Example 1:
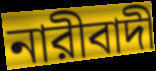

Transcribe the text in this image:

নারীবাদী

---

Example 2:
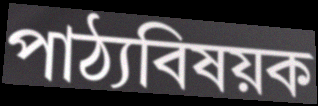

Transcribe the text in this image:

পাঠ্যবিষয়ক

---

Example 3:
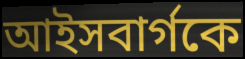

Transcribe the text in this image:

আইসবার্গকে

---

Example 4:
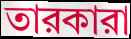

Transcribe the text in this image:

তারকারা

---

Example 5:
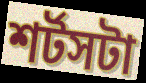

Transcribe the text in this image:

শর্টসটা